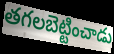
తగలబెట్టించాడు